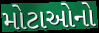
મોટાઓનો